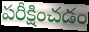
పరీక్షించడం